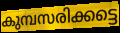
കുമ്പസരിക്കട്ടെ